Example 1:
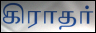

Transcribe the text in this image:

கிராதர்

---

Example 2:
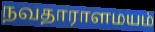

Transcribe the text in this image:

நவதாராளமயம்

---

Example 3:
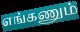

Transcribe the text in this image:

எங்கணும்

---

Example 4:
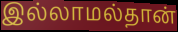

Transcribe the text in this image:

இல்லாமல்தான்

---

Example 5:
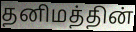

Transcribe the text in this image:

தனிமத்தின்